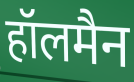
हॉलमैन